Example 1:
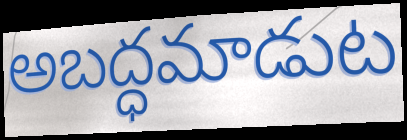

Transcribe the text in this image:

అబద్ధమాడుట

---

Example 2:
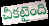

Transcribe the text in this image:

చీకటైంది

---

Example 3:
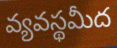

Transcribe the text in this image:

వ్యవస్థమీద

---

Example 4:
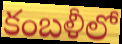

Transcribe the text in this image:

కంబళీలో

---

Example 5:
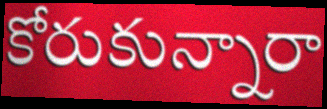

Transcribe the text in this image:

కోరుకున్నారా